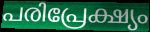
പരിപ്രേക്ഷ്യം